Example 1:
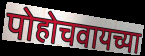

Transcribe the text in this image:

पोहोचवायच्या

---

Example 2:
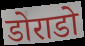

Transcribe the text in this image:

डोराडो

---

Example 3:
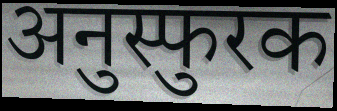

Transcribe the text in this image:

अनुस्फुरक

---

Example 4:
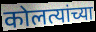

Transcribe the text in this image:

कोलत्यांच्या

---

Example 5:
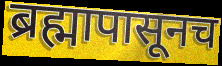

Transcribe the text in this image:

ब्रह्मापासूनच